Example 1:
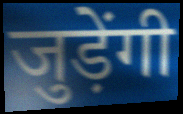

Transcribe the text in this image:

जुड़ेंगी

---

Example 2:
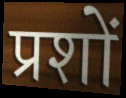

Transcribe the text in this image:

प्रशों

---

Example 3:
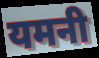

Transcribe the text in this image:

यमनी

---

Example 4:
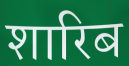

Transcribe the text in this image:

शारिब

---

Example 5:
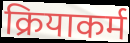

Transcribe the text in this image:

क्रियाकर्म